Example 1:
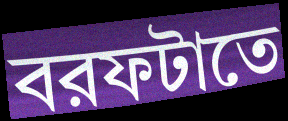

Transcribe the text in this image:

বরফটাতে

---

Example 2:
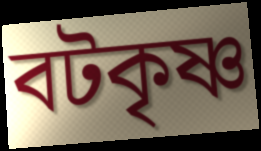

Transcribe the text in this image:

বটকৃষ্ণ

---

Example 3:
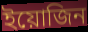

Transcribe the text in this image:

ইয়োজিন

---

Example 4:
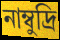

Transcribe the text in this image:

নাম্বুদ্রি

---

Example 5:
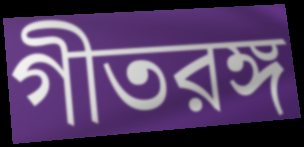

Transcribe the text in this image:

গীতরঙ্গ